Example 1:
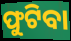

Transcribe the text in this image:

ଫୁଟିବା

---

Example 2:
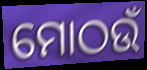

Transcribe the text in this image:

ମୋଠଉଁ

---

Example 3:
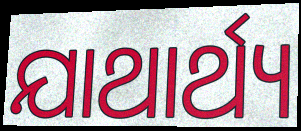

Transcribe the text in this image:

ଯାଥାର୍ଥ୍ୟ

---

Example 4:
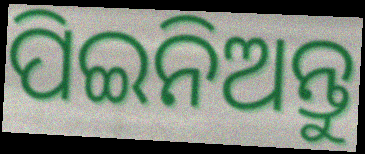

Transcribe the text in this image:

ପିଇନିଅନ୍ତୁ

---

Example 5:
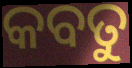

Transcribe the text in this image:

କବତୁ